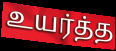
உயர்த்த